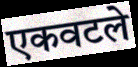
एकवटले